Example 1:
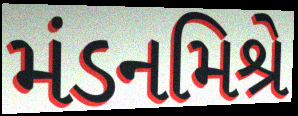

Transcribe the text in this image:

મંડનમિશ્રે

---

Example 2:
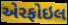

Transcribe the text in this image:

એરફોઇલ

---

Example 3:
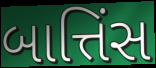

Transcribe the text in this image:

બાત્તિંસ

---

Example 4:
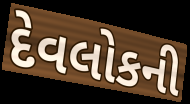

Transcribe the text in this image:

દેવલોકની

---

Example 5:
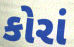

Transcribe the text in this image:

કોરાં